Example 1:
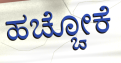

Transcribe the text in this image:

ಹಚ್ಚೋಕೆ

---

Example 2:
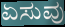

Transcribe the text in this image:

ಏಸುವು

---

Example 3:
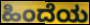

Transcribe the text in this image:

ಹಿಂದೆಯ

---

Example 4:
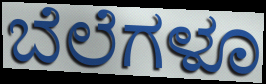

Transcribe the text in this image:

ಬೆಲೆಗಳೂ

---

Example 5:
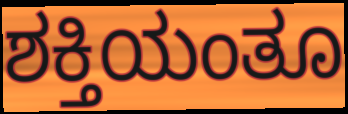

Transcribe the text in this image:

ಶಕ್ತಿಯಂತೂ